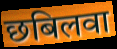
छबिलवा